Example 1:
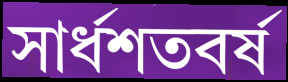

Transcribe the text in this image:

সার্ধশতবর্ষ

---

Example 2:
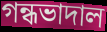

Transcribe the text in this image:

গন্ধভাদাল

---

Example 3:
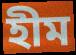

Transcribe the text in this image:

হীম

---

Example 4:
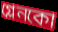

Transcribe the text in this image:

গ্লেনকো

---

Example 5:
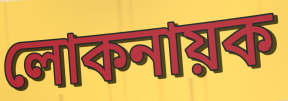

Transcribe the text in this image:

লোকনায়ক